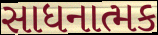
સાધનાત્મક